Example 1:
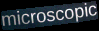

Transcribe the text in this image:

microscopic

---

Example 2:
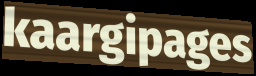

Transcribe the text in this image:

kaargipages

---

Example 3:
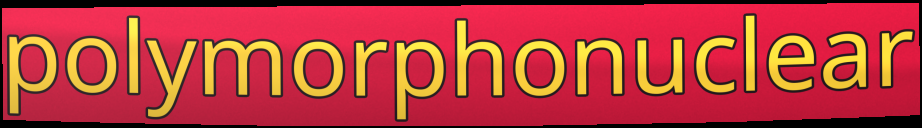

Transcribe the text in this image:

polymorphonuclear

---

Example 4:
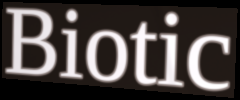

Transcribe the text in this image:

Biotic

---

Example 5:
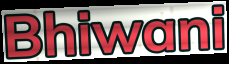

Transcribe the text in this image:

Bhiwani